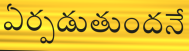
ఏర్పడుతుందనే